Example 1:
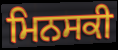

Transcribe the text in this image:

ਮਿਨਸਕੀ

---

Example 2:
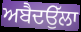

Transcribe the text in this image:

ਅਬੈਦਉੱਲਾ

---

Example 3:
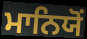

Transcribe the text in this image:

ਮਾਨਿਯੋਂ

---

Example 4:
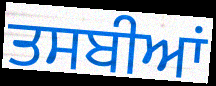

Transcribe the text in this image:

ਤਸਬੀਆਂ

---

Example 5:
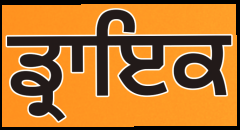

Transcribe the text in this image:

ਡ੍ਰਾਇਕ